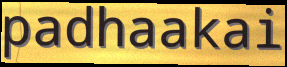
padhaakai